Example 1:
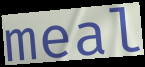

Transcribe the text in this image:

meal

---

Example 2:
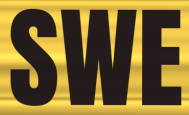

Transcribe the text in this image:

SWE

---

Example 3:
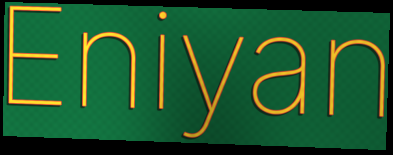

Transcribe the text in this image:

Eniyan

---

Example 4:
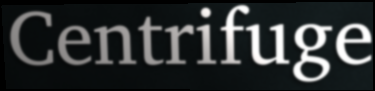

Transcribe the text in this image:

Centrifuge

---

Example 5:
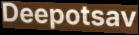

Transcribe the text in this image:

Deepotsav